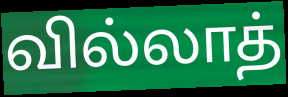
வில்லாத்